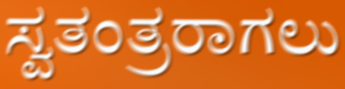
ಸ್ವತಂತ್ರರಾಗಲು